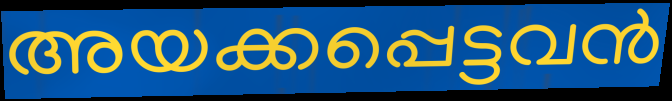
അയക്കപ്പെട്ടവൻ